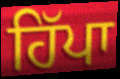
ਹਿੱਪਾ